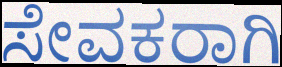
ಸೇವಕರಾಗಿ